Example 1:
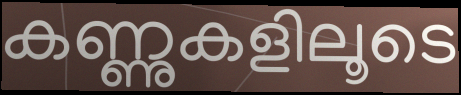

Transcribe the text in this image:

കണ്ണുകളിലൂടെ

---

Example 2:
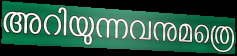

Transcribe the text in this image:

അറിയുന്നവനുമത്രെ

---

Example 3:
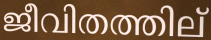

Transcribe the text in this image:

ജീവിതത്തില്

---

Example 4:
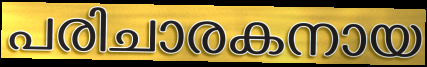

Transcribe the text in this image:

പരിചാരകനായ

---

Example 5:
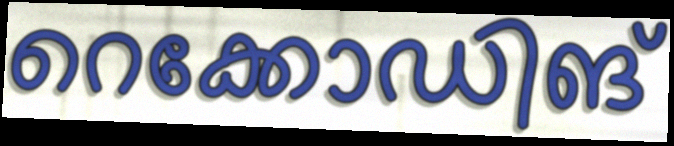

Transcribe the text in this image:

റെക്കോഡിങ്